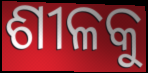
ଶୀଳକୁ